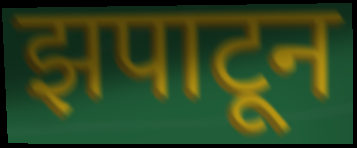
झपाटून